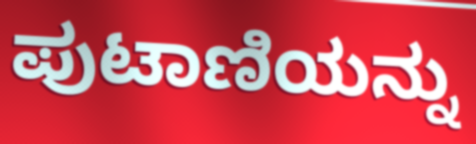
ಪುಟಾಣಿಯನ್ನು